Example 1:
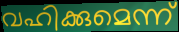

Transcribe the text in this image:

വഹിക്കുമെന്ന്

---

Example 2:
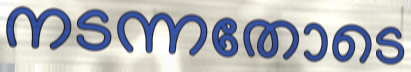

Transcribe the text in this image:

നടന്നതോടെ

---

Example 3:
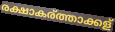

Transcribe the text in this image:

രക്ഷാകര്ത്താക്കള്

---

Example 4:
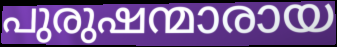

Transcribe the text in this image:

പുരുഷന്മാരായ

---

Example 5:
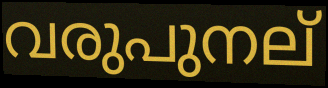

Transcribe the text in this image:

വരുപുനല്